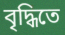
বৃদ্ধিতে